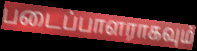
படைப்பாளராகவும்